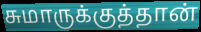
சுமாருக்குத்தான்